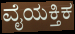
ವೈಯಕ್ತಿಕ